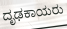
ದೃಢಕಾಯರು